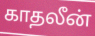
காதலீன்